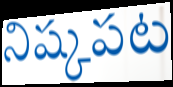
నిష్కపట